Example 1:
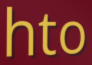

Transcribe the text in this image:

hto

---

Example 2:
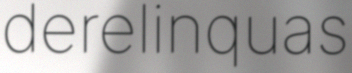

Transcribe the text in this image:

derelinquas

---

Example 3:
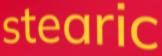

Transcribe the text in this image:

stearic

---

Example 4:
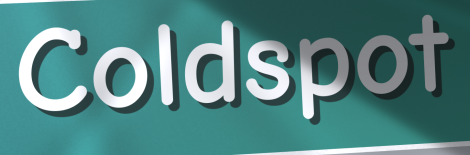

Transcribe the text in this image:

Coldspot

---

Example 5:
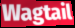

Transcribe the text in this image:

Wagtail